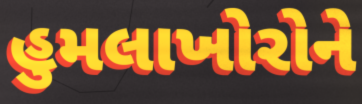
હુમલાખોરોને